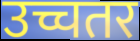
उच्चतर